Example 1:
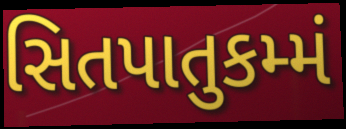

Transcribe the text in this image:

સિતપાતુકમ્મં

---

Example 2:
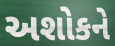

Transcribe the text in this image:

અશોકને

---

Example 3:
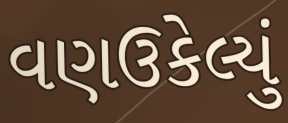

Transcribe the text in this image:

વણઉકેલ્યું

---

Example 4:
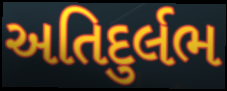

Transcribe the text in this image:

અતિદુર્લભ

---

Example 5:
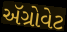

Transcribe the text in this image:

ઍગ્રોવેટ